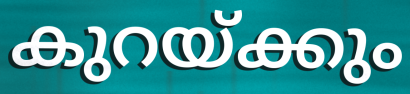
കുറയ്ക്കും